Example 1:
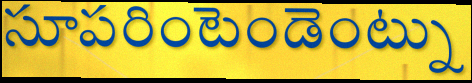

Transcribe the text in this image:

సూపరింటెండెంట్ను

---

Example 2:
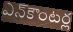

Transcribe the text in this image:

ఎన్‌కౌంటర్ల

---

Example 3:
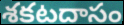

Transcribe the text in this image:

శకటదాసం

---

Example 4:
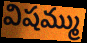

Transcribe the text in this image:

విషమ్ము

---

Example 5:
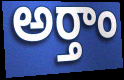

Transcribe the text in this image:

అర్తాం